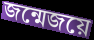
জন্মেজয়ে